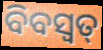
ବିବସ୍ଵତ୍